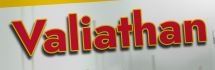
Valiathan